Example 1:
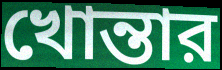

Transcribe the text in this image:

খোন্তার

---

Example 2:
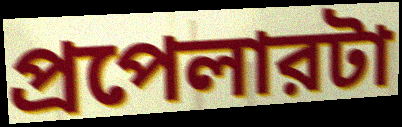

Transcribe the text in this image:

প্রপেলারটা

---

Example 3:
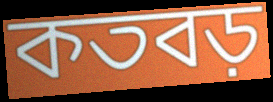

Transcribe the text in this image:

কতবড়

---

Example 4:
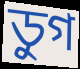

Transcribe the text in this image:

ডুগ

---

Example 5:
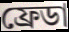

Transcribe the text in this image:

ফ্রেডা